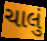
ચાલું